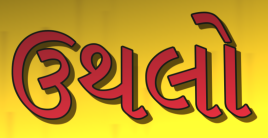
ઉથલો